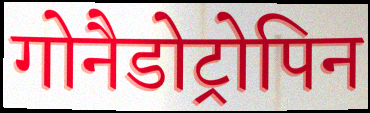
गोनैडोट्रोपिन